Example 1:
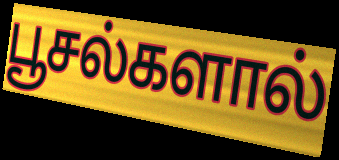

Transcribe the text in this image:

பூசல்களால்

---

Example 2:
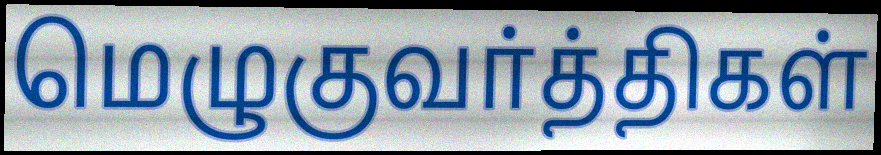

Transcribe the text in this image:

மெழுகுவர்த்திகள்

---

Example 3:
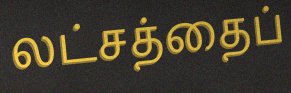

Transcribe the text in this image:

லட்சத்தைப்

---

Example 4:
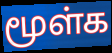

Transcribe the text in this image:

மூள்க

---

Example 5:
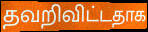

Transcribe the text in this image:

தவறிவிட்டதாக